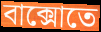
বাক্সোতে